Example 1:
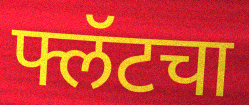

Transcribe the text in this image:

फ्लॅटचा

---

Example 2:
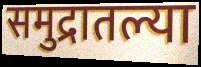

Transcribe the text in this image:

समुद्रातल्या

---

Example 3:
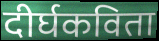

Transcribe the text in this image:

दीर्घकविता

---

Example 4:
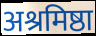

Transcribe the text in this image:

अश्रमिष्ठा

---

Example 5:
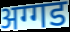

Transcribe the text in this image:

अग्गड